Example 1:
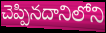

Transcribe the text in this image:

చెప్పినదానిలోని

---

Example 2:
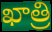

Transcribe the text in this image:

ఖాత్రి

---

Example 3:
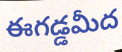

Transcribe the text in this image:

ఈగడ్డమీద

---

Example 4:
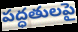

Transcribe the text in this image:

పద్ధతులపై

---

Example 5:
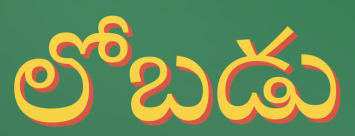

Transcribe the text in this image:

లోబడు